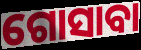
ଗୋସାବା